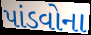
પાંડવોના